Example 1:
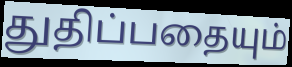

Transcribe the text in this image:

துதிப்பதையும்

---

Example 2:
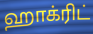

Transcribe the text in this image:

ஹாக்ரிட்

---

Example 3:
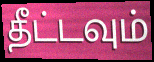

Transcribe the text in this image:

தீட்டவும்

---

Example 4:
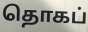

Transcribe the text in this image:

தொகப்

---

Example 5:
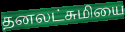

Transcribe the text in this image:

தனலட்சுமியை